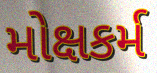
મોક્ષકર્મ